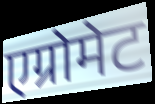
एग्रोमेट